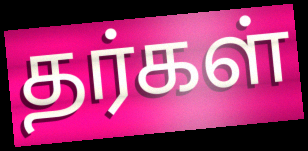
தர்கள்